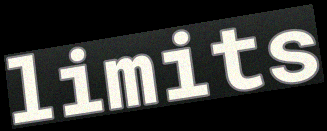
limits